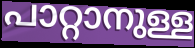
പാറ്റാനുള്ള